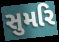
સુમરિ